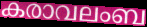
കരാവലംബ